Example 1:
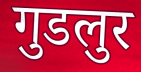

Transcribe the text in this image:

गुडलुर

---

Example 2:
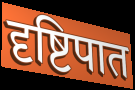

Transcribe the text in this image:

दृष्टिपात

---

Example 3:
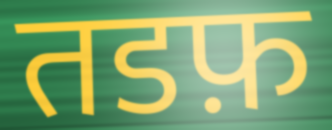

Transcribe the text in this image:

तडफ़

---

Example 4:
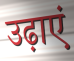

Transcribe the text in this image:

उढ़ाएं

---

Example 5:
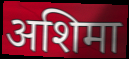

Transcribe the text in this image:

अशिमा